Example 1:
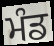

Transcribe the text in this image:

ਮੰਡ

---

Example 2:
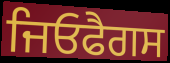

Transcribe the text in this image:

ਜਿਓਫੈਗਸ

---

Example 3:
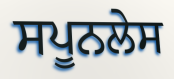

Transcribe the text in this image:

ਸਪੂਨਲੇਸ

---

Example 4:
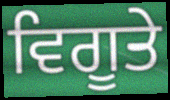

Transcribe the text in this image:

ਵਿਗੂਤੇ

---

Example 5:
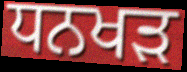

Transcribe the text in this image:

ਧਨਖੜ